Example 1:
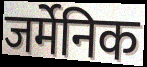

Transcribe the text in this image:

जर्मेनिक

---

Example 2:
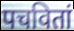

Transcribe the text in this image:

पचवितां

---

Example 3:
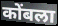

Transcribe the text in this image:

कोंबला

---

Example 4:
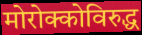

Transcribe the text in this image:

मोरोक्कोविरुद्ध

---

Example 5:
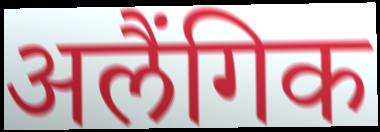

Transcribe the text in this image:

अलैंगिक